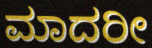
ಮಾದರೀ